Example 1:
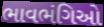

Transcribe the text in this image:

ભાવભંગિઓ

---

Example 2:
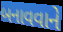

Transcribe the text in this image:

બનાવવાને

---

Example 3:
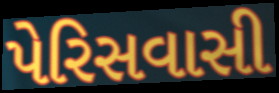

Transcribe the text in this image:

પેરિસવાસી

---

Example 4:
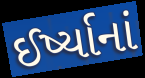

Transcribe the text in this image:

ઈર્ષ્યાનાં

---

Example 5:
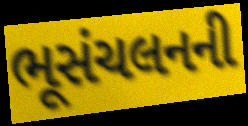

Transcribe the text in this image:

ભૂસંચલનની